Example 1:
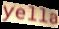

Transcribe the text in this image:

yella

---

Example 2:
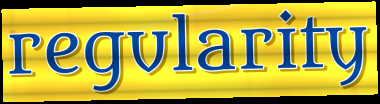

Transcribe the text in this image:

regularity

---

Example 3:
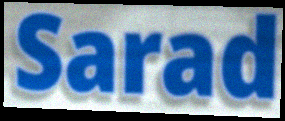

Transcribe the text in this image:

Sarad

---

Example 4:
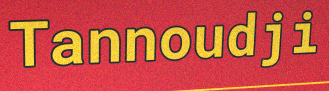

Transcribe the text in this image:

Tannoudji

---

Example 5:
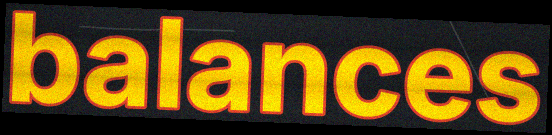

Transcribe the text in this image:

balances